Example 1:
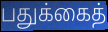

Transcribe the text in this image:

பதுக்கைத்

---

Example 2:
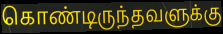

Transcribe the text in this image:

கொண்டிருந்தவளுக்கு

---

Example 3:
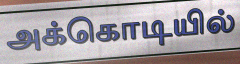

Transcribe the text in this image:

அக்கொடியில்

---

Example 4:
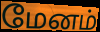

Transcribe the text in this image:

மேனம்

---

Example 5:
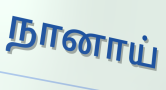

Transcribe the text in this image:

நானாய்